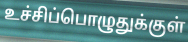
உச்சிப்பொழுதுக்குள்